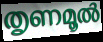
തൃണമൂൽ